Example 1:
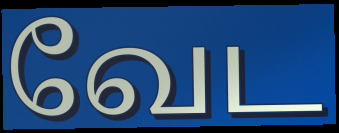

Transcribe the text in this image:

வேட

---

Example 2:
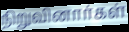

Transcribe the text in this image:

நிறுவினார்கள்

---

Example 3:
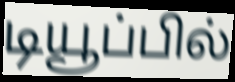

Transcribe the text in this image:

டியூப்பில்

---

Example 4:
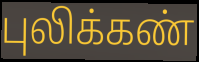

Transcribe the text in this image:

புலிக்கண்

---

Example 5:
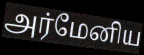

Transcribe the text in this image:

அர்மேனிய